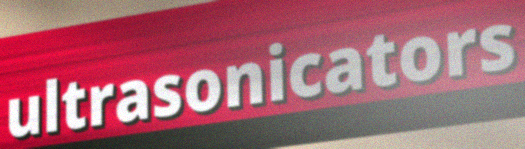
ultrasonicators